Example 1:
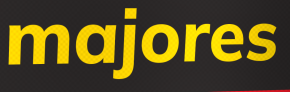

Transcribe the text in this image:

majores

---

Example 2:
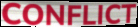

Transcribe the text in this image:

CONFLICT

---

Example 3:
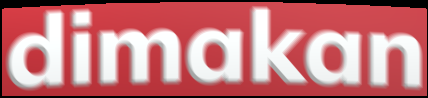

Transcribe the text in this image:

dimakan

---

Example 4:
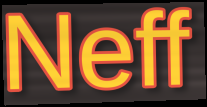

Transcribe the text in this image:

Neff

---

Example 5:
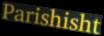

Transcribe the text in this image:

Parishisht